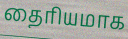
தைரியமாக